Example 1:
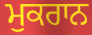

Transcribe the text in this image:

ਮੁਕਰਾਨ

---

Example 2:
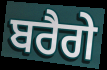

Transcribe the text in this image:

ਬਰੈਗੇ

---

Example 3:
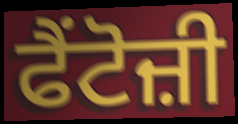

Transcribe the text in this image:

ਫੈਂਟੋਜ਼ੀ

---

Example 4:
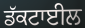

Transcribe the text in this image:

ਡੱਕਟਾਈਲ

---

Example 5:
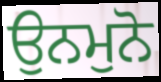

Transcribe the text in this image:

ਉਨਮੁਨੋ